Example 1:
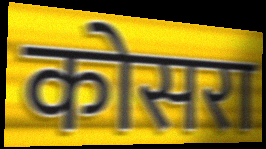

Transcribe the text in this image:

कोसरा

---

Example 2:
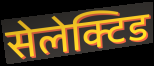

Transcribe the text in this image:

सेलेक्टिड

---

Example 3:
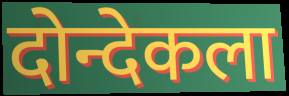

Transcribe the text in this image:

दोन्देकला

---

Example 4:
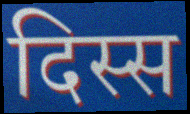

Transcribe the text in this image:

दिस्स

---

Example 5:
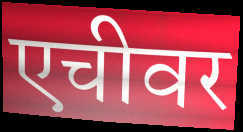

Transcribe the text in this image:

एचीवर